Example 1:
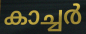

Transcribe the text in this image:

കാച്ചർ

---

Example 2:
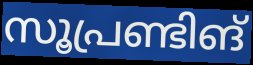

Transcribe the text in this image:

സൂപ്രണ്ടിങ്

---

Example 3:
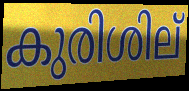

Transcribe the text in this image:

കുരിശില്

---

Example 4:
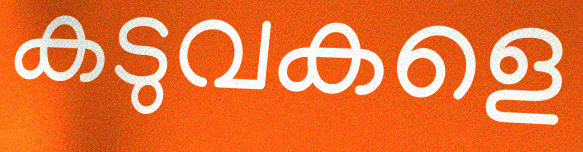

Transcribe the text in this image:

കടുവകളെ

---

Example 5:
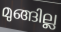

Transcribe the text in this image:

മുങ്ങില്ല